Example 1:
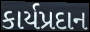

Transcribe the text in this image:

કાર્યપ્રદાન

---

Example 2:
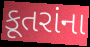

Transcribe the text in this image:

કૂતરાંના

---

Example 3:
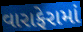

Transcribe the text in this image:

વારાફેરામાં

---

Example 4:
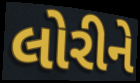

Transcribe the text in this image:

લોરીને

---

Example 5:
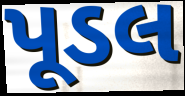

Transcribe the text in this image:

પૂડલ